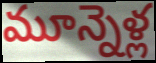
మూన్నెళ్ల